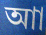
আা